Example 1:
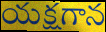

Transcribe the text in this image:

యక్షగాన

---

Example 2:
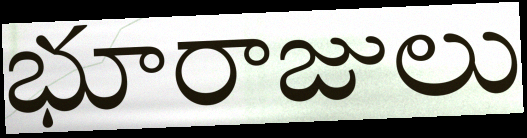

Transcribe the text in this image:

భూరాజులు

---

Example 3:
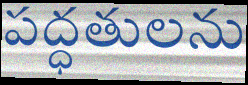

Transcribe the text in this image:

పద్ధతులను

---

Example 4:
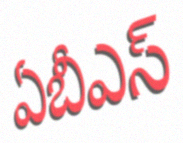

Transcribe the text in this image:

ఏబీఎస్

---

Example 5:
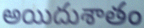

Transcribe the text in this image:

అయిదుశాతం